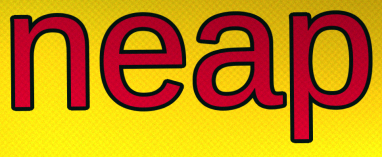
neap